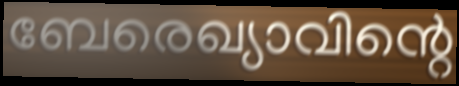
ബേരെഖ്യാവിന്റെ